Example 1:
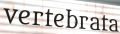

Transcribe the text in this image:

vertebrata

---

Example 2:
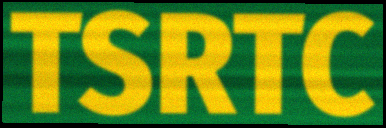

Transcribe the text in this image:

TSRTC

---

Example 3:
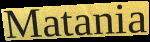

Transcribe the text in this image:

Matania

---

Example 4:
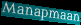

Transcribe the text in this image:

Manapmaan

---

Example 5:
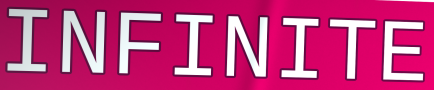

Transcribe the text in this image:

INFINITE